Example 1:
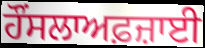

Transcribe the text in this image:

ਹੌਂਸਲਾਅਫ਼ਜ਼ਾਈ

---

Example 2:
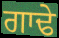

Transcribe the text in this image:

ਗਾਢੇ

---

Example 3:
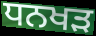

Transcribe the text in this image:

ਧਨਖਡ਼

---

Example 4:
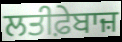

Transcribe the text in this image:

ਲਤੀਫ਼ੇਬਾਜ਼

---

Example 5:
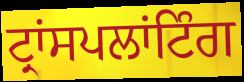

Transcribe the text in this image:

ਟ੍ਰਾਂਸਪਲਾਂਟਿੰਗ